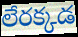
లేరక్కడ